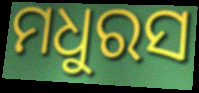
ମଧୁରସ